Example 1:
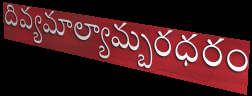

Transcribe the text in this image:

దివ్యమాల్యామ్బరధరం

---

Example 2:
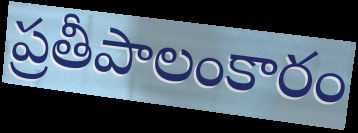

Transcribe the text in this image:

ప్రతీపాలంకారం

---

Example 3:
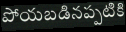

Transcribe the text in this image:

పోయబడినప్పటికి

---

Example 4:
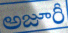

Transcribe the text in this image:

అజూరీ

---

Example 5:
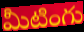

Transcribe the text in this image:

మీటింగు